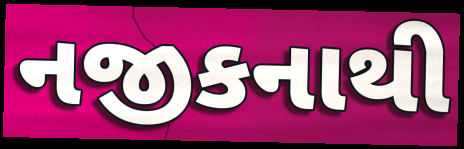
નજીકનાથી